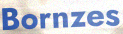
Bornzes